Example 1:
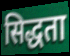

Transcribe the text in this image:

सिद्धता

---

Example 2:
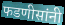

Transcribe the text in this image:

फडणीसांनी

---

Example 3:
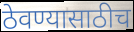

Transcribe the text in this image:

ठेवण्यासाठीच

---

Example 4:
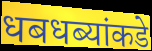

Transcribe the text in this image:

धबधब्यांकडे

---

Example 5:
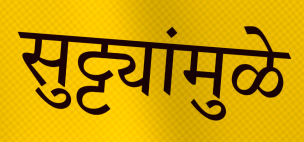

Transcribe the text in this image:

सुट्ट्यांमुळे